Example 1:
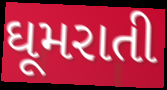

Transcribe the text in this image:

ઘૂમરાતી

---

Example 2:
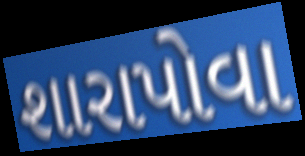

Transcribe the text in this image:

શારાપોવા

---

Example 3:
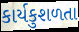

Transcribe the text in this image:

કાર્યકુશળતા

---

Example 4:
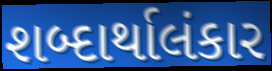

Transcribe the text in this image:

શબ્દાર્થાલંકાર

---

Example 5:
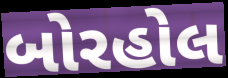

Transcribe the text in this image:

બોરહોલ